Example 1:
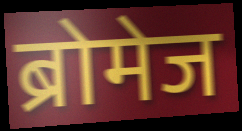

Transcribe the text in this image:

ब्रोमेज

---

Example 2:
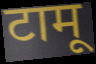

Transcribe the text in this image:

टामू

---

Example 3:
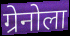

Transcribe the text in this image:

ग्रेनोला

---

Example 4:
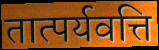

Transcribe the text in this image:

तात्पर्यवत्ति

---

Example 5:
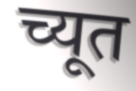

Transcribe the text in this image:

च्यूत